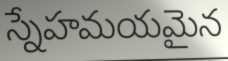
స్నేహమయమైన